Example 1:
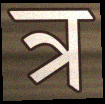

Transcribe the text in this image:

त्र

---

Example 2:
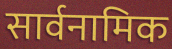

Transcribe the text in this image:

सार्वनामिक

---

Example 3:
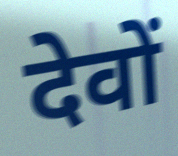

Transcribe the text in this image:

देवों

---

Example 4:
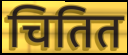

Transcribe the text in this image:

चितित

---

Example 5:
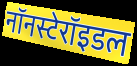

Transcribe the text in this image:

नॉनस्टेरॉइडल